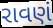
રાવણં